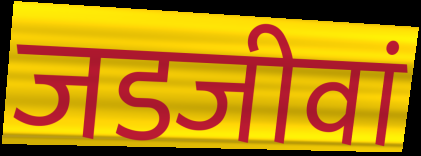
जडजीवां